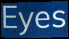
Eyes